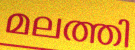
മലത്തി